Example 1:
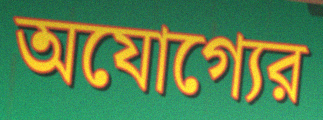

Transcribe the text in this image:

অযোগ্যের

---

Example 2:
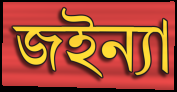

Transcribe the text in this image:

জইন্যা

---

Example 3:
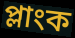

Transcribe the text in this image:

প্লাংক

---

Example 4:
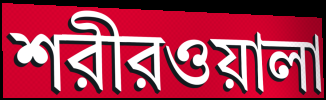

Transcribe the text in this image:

শরীরওয়ালা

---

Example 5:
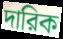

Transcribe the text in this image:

দারিক